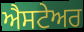
ਐਸਟੇਅਰ